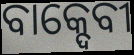
ବାକ୍ଦେବୀ